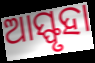
ଆସ୍ଫୃହା